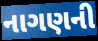
નાગણની